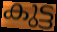
കുട്ട